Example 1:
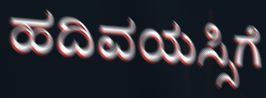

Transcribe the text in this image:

ಹದಿವಯಸ್ಸಿಗೆ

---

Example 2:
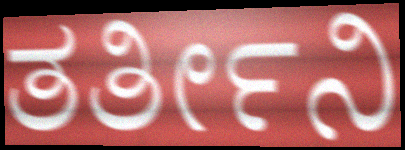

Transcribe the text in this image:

ತರ್ತೀನಿ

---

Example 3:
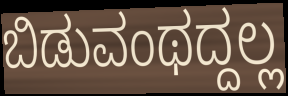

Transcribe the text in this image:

ಬಿಡುವಂಥದ್ದಲ್ಲ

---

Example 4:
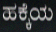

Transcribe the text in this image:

ಹಕ್ಕೆಯ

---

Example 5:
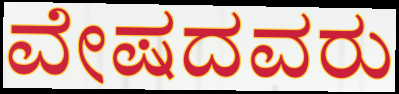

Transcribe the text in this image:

ವೇಷದವರು